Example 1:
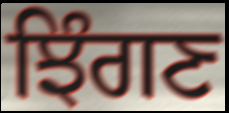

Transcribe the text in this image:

ਝਿੰਗਣ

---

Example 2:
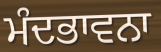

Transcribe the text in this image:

ਮੰਦਭਾਵਨਾ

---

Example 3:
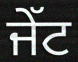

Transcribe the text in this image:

ਜੇੱਟ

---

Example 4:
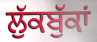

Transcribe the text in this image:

ਲੁੱਕਬੁੱਕਾਂ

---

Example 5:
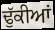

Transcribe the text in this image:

ਢੁੱਕੀਆਂ